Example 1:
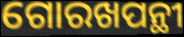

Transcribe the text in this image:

ଗୋରଖପନ୍ଥୀ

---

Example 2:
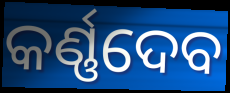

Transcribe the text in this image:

କର୍ଣ୍ଣଦେବ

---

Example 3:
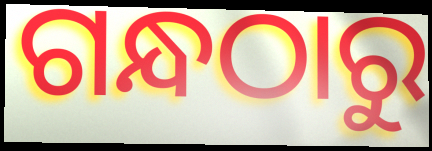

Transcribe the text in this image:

ଗନ୍ଧଠାରୁ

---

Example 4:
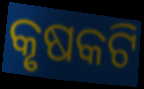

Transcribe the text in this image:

କୃଷକଟି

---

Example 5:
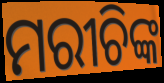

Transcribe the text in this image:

ମରୀଚିଙ୍କ